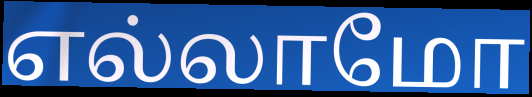
எல்லாமோ